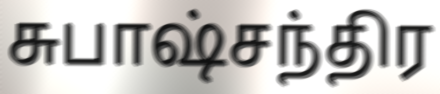
சுபாஷ்சந்திர